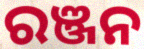
ରଞ୍ଜନ